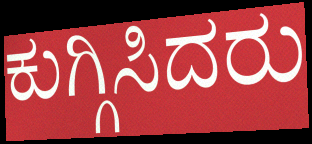
ಕುಗ್ಗಿಸಿದರು